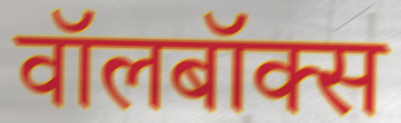
वॉलबॉक्स